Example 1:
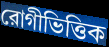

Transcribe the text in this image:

রোগীভিত্তিক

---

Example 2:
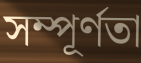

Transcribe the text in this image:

সম্পূর্ণতা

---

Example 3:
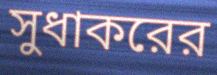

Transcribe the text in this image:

সুধাকরের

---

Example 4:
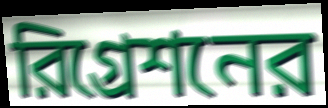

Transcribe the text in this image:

রিগ্রেশনের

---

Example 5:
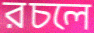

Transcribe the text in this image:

রচলে